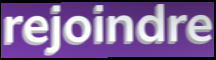
rejoindre